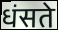
धंसते